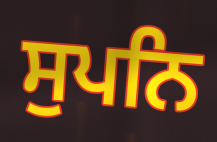
ਸੁਪਨਿ